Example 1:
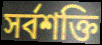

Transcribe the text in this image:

সর্বশক্তি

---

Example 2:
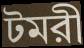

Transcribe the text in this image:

টমরী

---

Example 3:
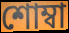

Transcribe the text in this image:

শোম্বা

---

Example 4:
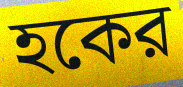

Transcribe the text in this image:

হকের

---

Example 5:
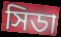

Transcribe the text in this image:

সিডা